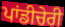
ਪਾਂਡੀਚੇਰੀ